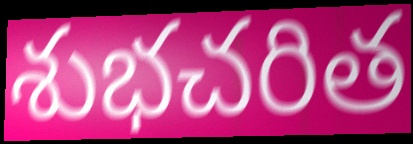
శుభచరిత